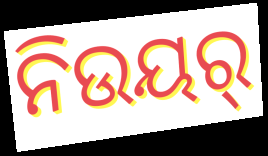
ନିଉୟର୍